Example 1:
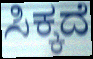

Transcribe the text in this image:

ಸಿಕ್ಕದೆ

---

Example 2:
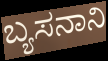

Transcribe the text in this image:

ಬ್ಯಸನಾನಿ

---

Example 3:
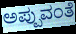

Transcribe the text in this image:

ಅಪ್ಪುವಂತೆ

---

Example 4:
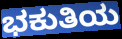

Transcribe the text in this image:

ಭಕುತಿಯ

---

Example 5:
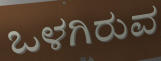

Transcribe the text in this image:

ಒಳಗಿರುವ